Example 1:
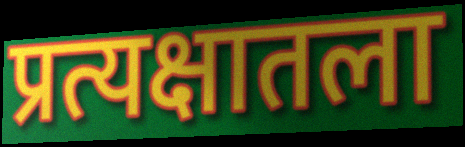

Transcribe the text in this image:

प्रत्यक्षातला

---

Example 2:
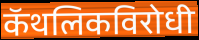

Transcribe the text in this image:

कॅथलिकविरोधी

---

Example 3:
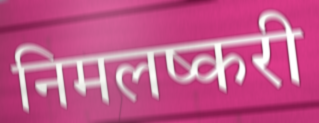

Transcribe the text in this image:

निमलष्करी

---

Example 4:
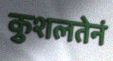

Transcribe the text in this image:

कुशलतेनं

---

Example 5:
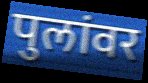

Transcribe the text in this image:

पुलांवर